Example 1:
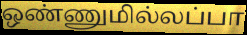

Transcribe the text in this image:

ஒண்ணுமில்லப்பா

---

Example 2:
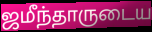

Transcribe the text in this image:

ஜமீந்தாருடைய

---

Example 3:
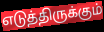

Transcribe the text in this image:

எடுத்திருக்கும்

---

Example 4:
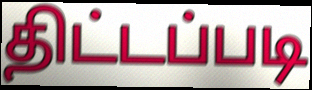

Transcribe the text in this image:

திட்டப்படி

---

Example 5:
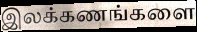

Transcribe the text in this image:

இலக்கணங்களை